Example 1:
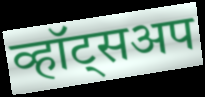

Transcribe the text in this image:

व्हॉट्सअप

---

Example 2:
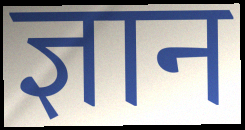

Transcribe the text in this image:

ज्ञान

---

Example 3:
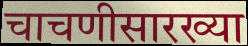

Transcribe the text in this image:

चाचणीसारख्या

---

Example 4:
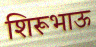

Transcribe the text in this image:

शिरूभाऊ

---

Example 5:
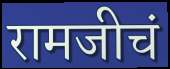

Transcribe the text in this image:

रामजीचं